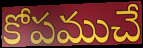
కోపముచే